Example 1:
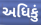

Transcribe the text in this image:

અધિકું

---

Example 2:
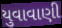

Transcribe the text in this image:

યુવાવાણી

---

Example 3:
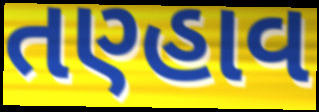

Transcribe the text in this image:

તણ્હાવ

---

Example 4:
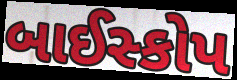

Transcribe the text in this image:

બાઈસ્કોપ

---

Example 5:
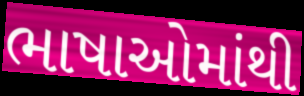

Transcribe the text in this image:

ભાષાઓમાંથી